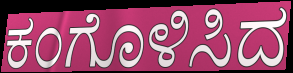
ಕಂಗೊಳಿಸಿದ